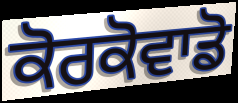
ਕੋਰਕੋਵਾਡੋ